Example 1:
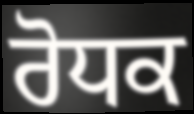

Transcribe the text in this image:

ਰੋਧਕ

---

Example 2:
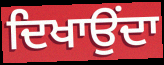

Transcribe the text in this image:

ਦਿਖਾਉਂਦਾ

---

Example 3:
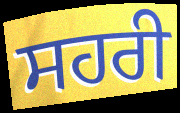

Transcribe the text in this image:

ਸਹਰੀ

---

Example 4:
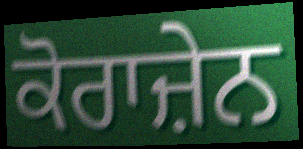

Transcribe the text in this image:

ਕੋਰਾਜ਼ੇਨ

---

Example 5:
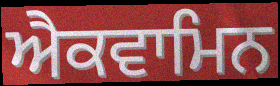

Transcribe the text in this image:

ਐਕਵਾਮਿਨ